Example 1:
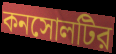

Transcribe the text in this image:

কনসোলটির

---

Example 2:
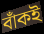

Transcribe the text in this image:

বাঁকই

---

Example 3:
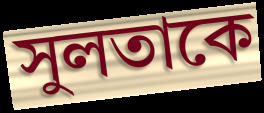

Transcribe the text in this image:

সুলতাকে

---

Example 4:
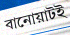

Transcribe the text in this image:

বানোয়াটই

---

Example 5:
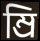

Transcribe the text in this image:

ম্রি